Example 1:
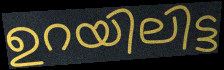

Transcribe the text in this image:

ഉറയിലിട്ട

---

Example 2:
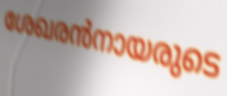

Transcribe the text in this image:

ശേഖരൻനായരുടെ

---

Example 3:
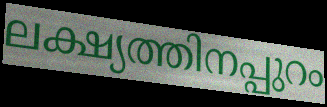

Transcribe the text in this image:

ലക്ഷ്യത്തിനപ്പുറം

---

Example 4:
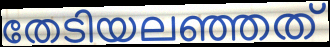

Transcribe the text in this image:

തേടിയലഞ്ഞത്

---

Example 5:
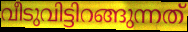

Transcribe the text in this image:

വീടുവിട്ടിറങ്ങുന്നത്